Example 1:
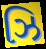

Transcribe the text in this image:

ઝિ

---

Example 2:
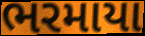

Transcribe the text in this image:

ભરમાયા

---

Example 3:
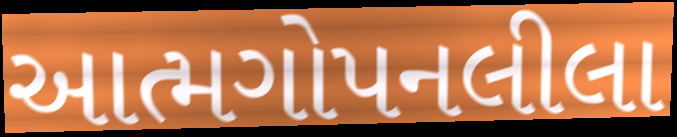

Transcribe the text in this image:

આત્મગોપનલીલા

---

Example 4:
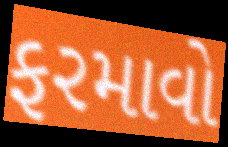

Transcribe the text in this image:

ફરમાવો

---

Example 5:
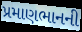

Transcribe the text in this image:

પ્રમાણભાનની